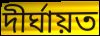
দীর্ঘায়ত